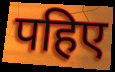
पहिए